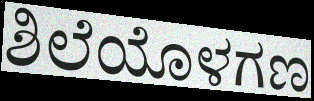
ಶಿಲೆಯೊಳಗಣ